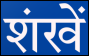
शंखें